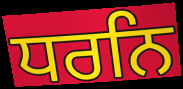
ਧਰਨਿ